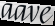
aave